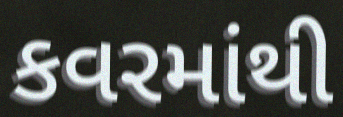
કવરમાંથી